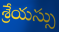
శ్రేయస్సు